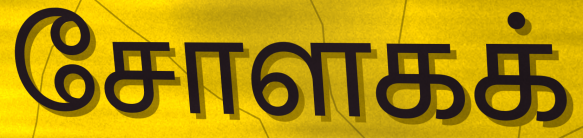
சோளகக்